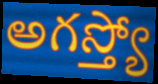
అగస్త్యో